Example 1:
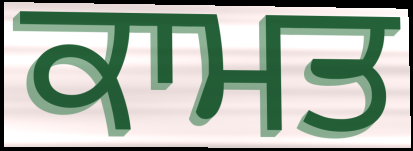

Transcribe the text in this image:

ਕਾਮਤ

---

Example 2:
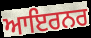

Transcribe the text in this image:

ਆਇਰਨਰ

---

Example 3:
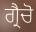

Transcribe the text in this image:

ਗ੍ਰੈਚੋ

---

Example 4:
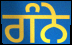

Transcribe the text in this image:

ਗੰਨੇ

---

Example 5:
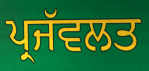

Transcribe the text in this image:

ਪ੍ਰਜੱਵਲਤ